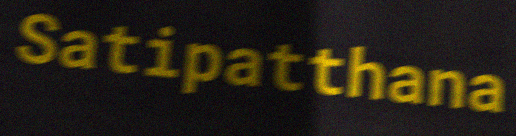
Satipatthana